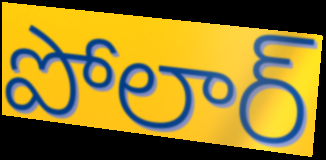
పోలార్